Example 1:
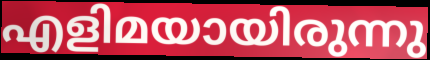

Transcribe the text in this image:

എളിമയായിരുന്നു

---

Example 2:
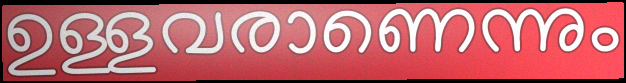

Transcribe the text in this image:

ഉള്ളവരാണെന്നും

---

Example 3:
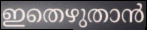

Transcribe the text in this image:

ഇതെഴുതാൻ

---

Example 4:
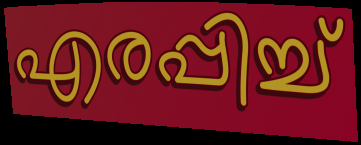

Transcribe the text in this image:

എരപ്പിച്ച്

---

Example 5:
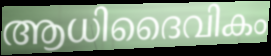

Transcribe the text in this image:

ആധിദൈവികം